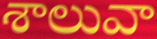
శాలువా